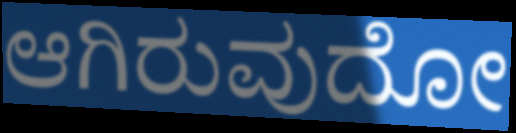
ಆಗಿರುವುದೋ